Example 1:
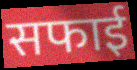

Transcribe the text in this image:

सफाई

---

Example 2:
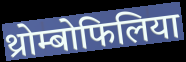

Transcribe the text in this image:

थ्रोम्बोफिलिया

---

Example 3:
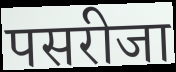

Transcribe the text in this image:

पसरीजा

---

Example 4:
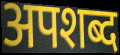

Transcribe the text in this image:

अपशब्द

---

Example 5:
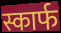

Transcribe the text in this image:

स्कार्फ